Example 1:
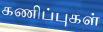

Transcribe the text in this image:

கணிப்புகள்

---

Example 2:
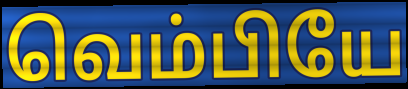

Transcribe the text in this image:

வெம்பியே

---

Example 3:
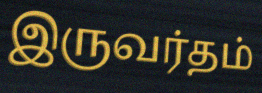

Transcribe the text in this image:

இருவர்தம்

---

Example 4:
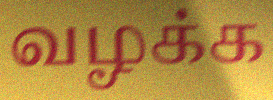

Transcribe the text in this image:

வழக்க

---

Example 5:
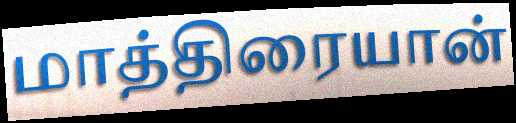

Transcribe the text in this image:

மாத்திரையான்